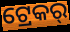
ଟ୍ରେକର୍